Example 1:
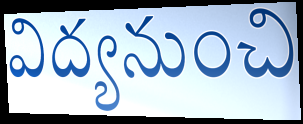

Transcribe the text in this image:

విద్యనుంచి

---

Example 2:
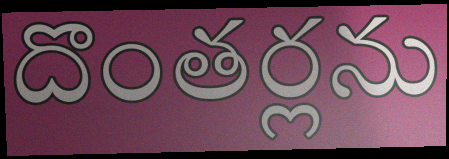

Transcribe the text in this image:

దొంతర్లను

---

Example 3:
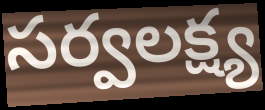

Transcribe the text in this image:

సర్వలక్ష్య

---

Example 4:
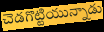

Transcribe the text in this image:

చెడగొట్టియున్నాడు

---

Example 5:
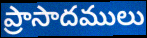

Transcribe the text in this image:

ప్రాసాదములు